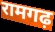
रामगढ़